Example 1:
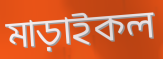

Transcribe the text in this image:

মাড়াইকল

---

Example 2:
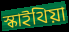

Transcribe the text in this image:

স্কাইথিয়া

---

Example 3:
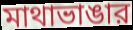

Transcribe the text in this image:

মাথাভাঙার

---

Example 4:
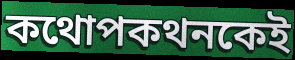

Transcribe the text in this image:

কথোপকথনকেই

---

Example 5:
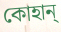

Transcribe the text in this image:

কোহান্